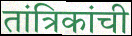
तांत्रिकांची